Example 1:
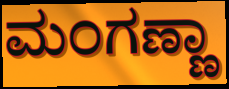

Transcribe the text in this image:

ಮಂಗಣ್ಣಾ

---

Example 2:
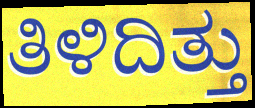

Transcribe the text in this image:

ತಿಳಿದಿತ್ತು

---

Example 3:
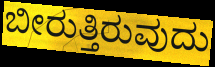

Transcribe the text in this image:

ಬೀರುತ್ತಿರುವುದು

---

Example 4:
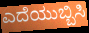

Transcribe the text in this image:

ಎದೆಯುಬ್ಬಿಸಿ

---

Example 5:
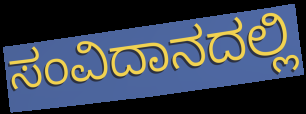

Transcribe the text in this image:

ಸಂವಿದಾನದಲ್ಲಿ